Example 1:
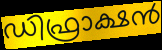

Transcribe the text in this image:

ഡിഫ്രാക്ഷൻ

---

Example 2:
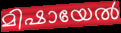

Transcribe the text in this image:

മിഷായേൽ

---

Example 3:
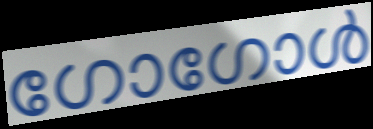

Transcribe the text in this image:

ഗോഗോൾ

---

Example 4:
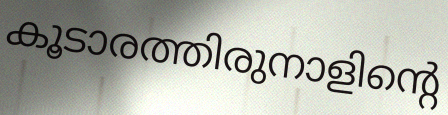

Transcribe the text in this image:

കൂടാരത്തിരുനാളിന്റെ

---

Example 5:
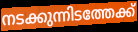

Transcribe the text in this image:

നടക്കുന്നിടത്തേക്ക്